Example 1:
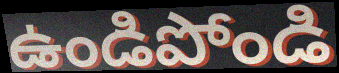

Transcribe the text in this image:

ఉండిపోండి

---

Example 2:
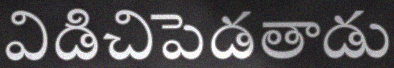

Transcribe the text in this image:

విడిచిపెడతాడు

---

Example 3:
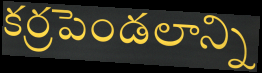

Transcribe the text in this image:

కర్రపెండలాన్ని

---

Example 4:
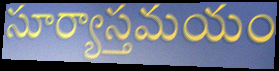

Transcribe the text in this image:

సూర్యాస్తమయం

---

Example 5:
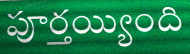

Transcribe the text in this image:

పూర్తయ్యింది